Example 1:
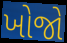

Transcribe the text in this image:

ખોજો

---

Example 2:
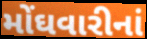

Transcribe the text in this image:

મોંઘવારીનાં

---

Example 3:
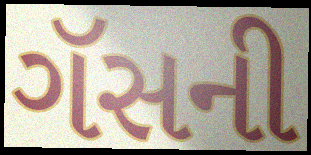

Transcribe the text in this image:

ગૅસની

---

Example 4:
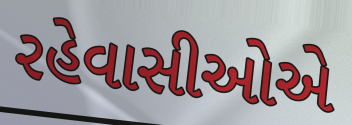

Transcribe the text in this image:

રહેવાસીઓએ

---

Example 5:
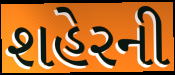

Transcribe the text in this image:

શહેરની